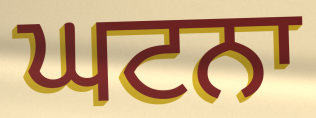
ਘਟਨਾ